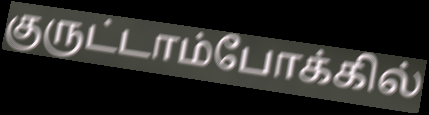
குருட்டாம்போக்கில்